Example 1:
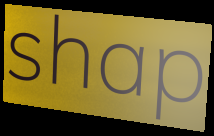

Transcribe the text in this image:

shap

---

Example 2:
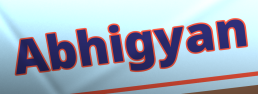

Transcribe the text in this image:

Abhigyan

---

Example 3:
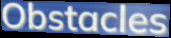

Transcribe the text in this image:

Obstacles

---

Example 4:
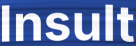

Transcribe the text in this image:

Insult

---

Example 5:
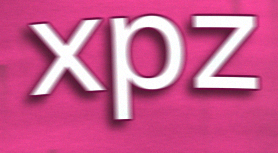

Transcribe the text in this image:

xpz